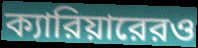
ক্যারিয়ারেরও